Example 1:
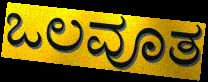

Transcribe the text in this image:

ಒಲವೂತ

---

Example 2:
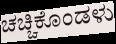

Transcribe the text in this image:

ಚಚ್ಚಿಕೊಂಡಳು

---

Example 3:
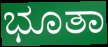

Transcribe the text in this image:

ಭೂತಾ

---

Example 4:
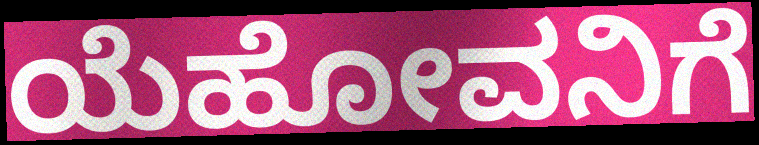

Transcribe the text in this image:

ಯೆಹೋವನಿಗೆ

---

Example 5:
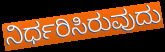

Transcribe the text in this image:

ನಿರ್ಧರಿಸಿರುವುದು